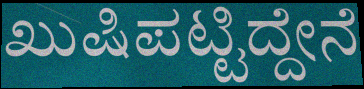
ಖುಷಿಪಟ್ಟಿದ್ದೇನೆ